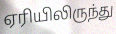
ஏரியிலிருந்து